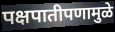
पक्षपातीपणामुळे